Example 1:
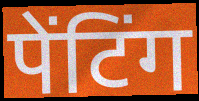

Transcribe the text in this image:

पेंटिंग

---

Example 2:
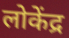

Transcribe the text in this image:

लोकेंद्र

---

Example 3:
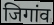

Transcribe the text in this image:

जिगांव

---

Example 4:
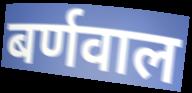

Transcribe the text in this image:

बर्णवाल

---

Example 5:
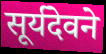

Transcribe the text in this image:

सूर्यदेवने